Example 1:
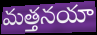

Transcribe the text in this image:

మత్తనయా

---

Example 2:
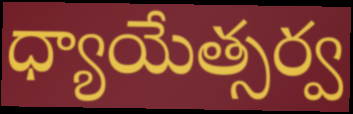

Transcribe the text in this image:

ధ్యాయేత్సర్వ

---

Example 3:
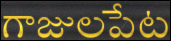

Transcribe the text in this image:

గాజులపేట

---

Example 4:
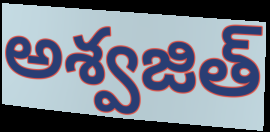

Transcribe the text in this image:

అశ్వజిత్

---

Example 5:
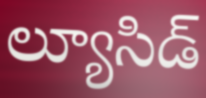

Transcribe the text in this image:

ల్యూసిడ్